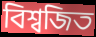
বিশ্বজিত